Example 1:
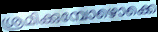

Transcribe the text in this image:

ശ്രമിക്കുമ്പോഴൊക്കെ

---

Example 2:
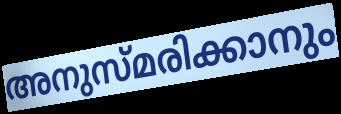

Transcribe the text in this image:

അനുസ്മരിക്കാനും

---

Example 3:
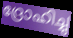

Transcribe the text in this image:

ദ്രോഹിച്ചു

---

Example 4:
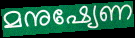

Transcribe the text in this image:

മനുഷ്യേണ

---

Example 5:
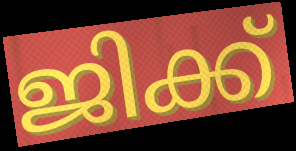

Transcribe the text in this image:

ജിക്ക്